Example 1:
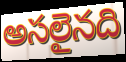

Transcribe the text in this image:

అసలైనది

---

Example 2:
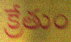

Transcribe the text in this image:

క్రేతుం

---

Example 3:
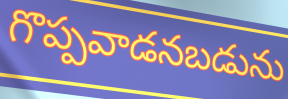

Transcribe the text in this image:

గొప్పవాడనబడును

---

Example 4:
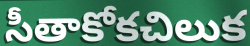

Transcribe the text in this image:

సీతాకోకచిలుక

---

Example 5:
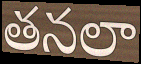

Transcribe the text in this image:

తనలా